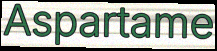
Aspartame